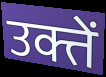
उक्तें